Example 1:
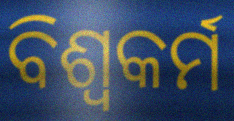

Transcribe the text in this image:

ବିଶ୍ୱକର୍ମ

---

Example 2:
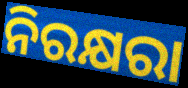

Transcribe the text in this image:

ନିରକ୍ଷରା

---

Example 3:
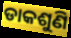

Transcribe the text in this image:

ଡାକଶୁଣି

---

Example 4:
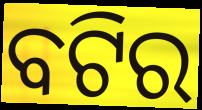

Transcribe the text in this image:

ବଟିର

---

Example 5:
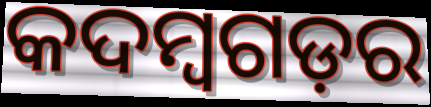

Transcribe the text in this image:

କଦମ୍ବଗଡ଼ର